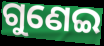
ଗୁଣେଇ